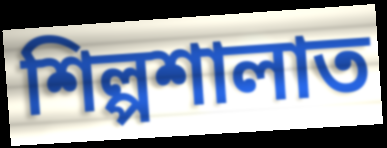
শিল্পশালাত